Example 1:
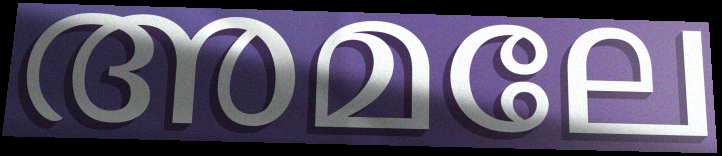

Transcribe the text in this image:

അമലേ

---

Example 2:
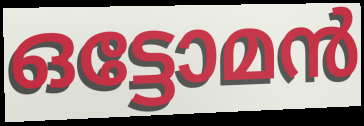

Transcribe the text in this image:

ഒട്ടോമൻ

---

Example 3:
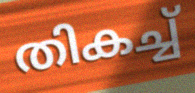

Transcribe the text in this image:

തികച്ച്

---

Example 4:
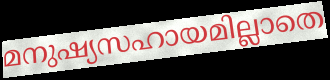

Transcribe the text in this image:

മനുഷ്യസഹായമില്ലാതെ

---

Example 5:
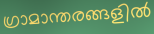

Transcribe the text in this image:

ഗ്രാമാന്തരങ്ങളിൽ